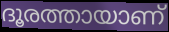
ദൂരത്തായാണ്